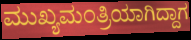
ಮುಖ್ಯಮಂತ್ರಿಯಾಗಿದ್ದಾಗ